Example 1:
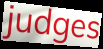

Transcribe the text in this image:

judges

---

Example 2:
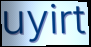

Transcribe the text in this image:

uyirt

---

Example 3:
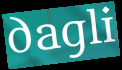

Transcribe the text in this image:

dagli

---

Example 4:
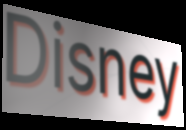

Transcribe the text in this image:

Disney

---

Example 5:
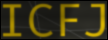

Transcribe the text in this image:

ICFJ